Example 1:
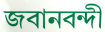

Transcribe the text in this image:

জবানবন্দী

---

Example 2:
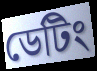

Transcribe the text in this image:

ডেটিং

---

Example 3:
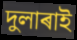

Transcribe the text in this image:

দুলাৰাই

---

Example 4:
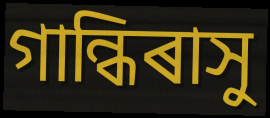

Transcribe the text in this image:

গান্ধিৰাসু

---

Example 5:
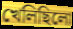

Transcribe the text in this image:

খেলিছিলো